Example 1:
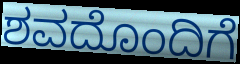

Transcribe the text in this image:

ಶವದೊಂದಿಗೆ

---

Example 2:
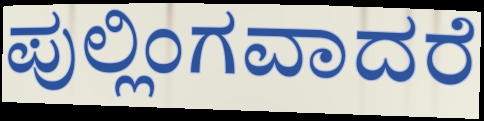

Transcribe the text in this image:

ಪುಲ್ಲಿಂಗವಾದರೆ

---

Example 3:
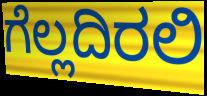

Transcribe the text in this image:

ಗೆಲ್ಲದಿರಲಿ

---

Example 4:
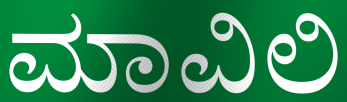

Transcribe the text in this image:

ಮಾವಿಲಿ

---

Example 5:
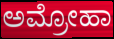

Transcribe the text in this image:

ಅಮ್ರೋಹಾ